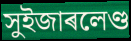
সুইজাৰলেণ্ড